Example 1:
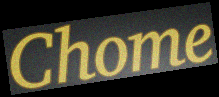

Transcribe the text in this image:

Chome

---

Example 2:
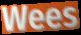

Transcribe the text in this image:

Wees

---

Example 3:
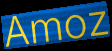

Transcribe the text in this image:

Amoz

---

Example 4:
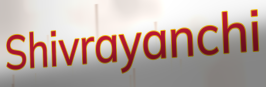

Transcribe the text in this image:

Shivrayanchi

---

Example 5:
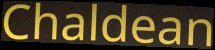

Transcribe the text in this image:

Chaldean